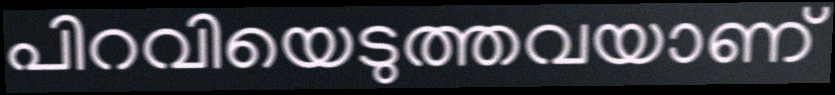
പിറവിയെടുത്തവയാണ്